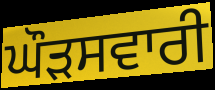
ਘੌੜਸਵਾਰੀ